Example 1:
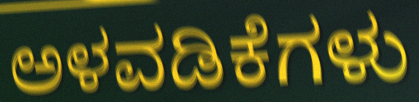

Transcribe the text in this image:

ಅಳವಡಿಕೆಗಳು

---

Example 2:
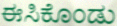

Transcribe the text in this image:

ಈಸಿಕೊಂಡು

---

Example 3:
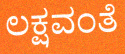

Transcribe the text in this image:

ಲಕ್ಷವಂತೆ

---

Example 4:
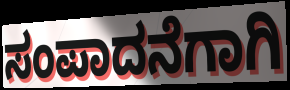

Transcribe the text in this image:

ಸಂಪಾದನೆಗಾಗಿ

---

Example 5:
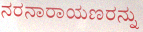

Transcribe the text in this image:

ನರನಾರಾಯಣರನ್ನು